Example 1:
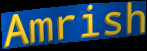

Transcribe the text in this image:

Amrish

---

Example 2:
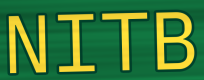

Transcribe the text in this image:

NITB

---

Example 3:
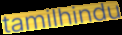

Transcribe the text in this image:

tamilhindu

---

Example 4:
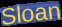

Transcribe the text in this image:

Sloan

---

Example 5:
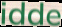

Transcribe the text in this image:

idde